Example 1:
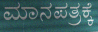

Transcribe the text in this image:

ಮಾನಪತ್ರಕ್ಕೆ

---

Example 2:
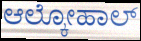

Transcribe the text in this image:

ಆಲ್ಕೋಹಾಲ್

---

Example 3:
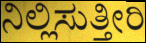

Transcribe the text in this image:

ನಿಲ್ಲಿಸುತ್ತೀರಿ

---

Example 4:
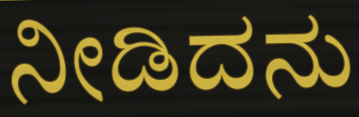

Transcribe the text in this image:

ನೀಡಿದನು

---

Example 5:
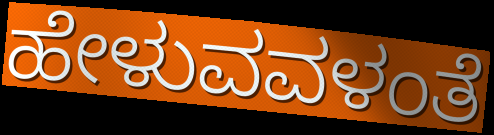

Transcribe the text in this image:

ಹೇಳುವವಳಂತೆ